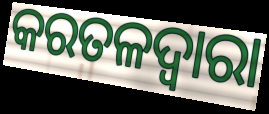
କରତଳଦ୍ୱାରା